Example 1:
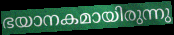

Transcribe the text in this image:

ഭയാനകമായിരുന്നു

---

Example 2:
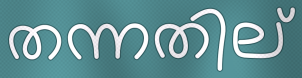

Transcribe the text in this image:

തന്നതില്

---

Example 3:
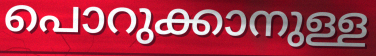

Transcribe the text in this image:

പൊറുക്കാനുള്ള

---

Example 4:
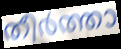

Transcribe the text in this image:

തീർത്താ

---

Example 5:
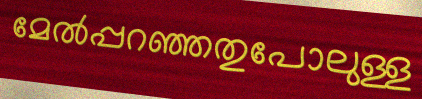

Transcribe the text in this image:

മേൽപ്പറഞ്ഞതുപോലുള്ള